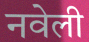
नवेली